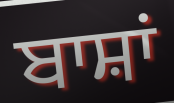
ਬਾਸ਼ਾਂ